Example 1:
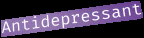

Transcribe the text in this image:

Antidepressant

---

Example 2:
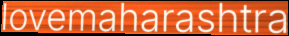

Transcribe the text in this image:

lovemaharashtra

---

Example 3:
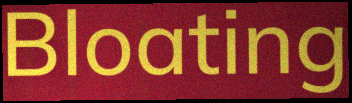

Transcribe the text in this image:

Bloating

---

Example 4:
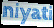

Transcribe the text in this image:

niyati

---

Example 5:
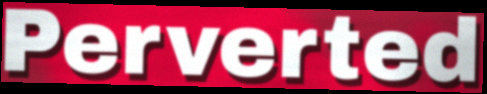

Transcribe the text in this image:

Perverted